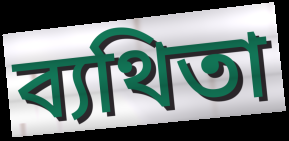
ব্যথিতা